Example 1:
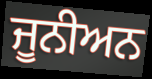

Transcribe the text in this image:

ਜੂਨੀਅਨ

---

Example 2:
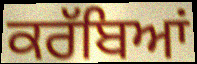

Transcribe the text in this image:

ਕਰੱਬਿਆਂ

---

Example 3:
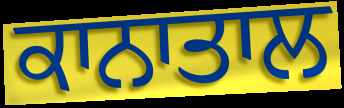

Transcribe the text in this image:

ਕਾਨਾਤਾਲ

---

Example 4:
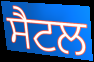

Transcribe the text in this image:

ਸੈਟਲ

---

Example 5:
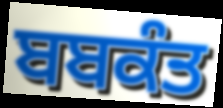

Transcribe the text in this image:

ਬਬਕੰਤ